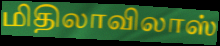
மிதிலாவிலாஸ்